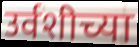
उर्वशीच्या